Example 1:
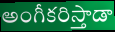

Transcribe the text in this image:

అంగీకరిస్తాడా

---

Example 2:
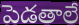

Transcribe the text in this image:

పెడతాలే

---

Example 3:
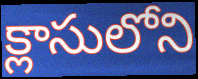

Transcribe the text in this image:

క్లాసులోని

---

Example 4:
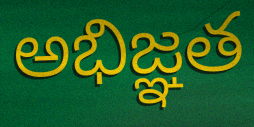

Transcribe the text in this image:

అభిజ్ఞత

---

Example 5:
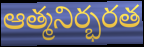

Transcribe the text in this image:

ఆత్మనిర్భరత